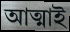
আত্মাই